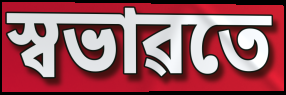
স্বভাৱতে